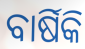
ବାର୍ଷିକି